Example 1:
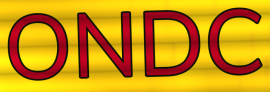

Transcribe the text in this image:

ONDC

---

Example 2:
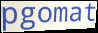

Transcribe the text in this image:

pgomat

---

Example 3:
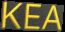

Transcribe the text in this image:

KEA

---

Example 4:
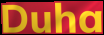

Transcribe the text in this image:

Duha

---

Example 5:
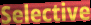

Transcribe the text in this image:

Selective